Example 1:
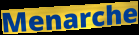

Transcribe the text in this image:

Menarche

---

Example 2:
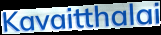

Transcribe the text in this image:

Kavaitthalai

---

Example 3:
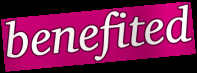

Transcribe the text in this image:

benefited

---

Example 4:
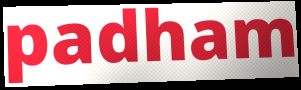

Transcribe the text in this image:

padham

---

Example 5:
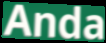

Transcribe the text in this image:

Anda